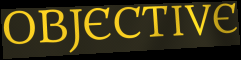
OBJECTIVE